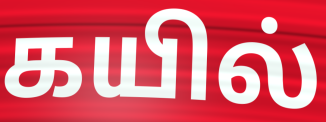
கயில்